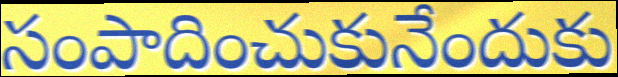
సంపాదించుకునేందుకు